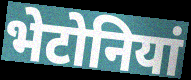
भेटोनियां